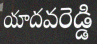
యాదవరెడ్డి